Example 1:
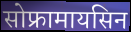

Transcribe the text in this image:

सोफ्रामायसिन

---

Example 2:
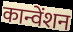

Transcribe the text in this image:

कान्वेंशन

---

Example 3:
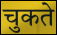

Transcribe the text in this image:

चुकते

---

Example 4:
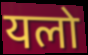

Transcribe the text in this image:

यलो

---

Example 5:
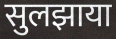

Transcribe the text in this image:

सुलझाया